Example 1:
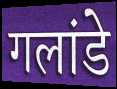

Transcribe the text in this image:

गलांडे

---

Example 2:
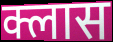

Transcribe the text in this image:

क्लास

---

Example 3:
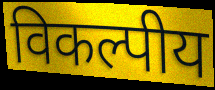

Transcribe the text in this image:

विकल्पीय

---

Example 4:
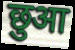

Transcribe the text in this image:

छुआ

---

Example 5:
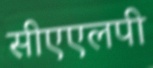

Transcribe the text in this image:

सीएएलपी